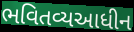
ભવિતવ્યઆધીન